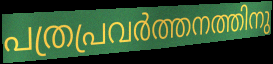
പത്രപ്രവർത്തനത്തിനു